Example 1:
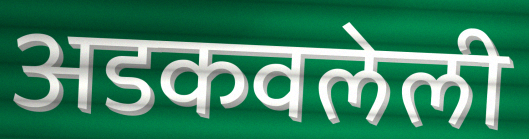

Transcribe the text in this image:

अडकवलेली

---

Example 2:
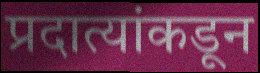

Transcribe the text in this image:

प्रदात्यांकडून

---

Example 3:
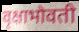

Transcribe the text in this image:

वृक्षाभोवती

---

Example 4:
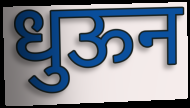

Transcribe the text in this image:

धुऊन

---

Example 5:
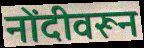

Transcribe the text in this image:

नोंदीवरून